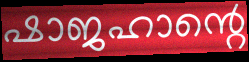
ഷാജഹാന്റെ